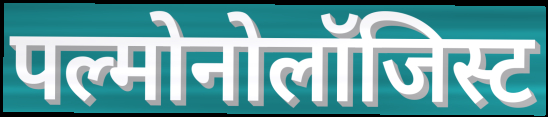
पल्मोनोलॉजिस्ट